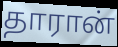
தாரான்